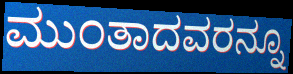
ಮುಂತಾದವರನ್ನೂ